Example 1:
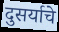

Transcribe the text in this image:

दुसर्याचे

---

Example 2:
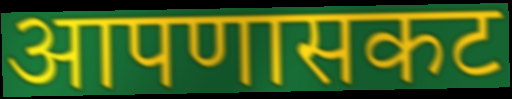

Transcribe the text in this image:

आपणासकट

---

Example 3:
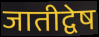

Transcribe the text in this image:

जातीद्वेष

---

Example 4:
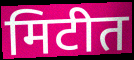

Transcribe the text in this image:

मिटीत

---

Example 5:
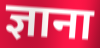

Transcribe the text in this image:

ज्ञाना